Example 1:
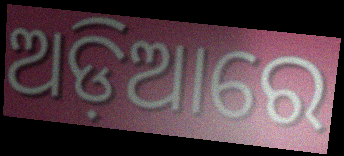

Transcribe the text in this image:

ଅଡ଼ିଆରେ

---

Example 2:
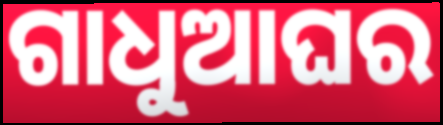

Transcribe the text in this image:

ଗାଧୁଆଘର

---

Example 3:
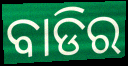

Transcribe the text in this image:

ବାଡିର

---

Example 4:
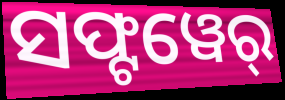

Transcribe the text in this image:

ସଫ୍ଟୱେର୍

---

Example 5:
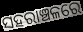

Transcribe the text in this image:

ସହରାଞ୍ଚଳରେ